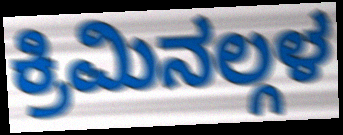
ಕ್ರಿಮಿನಲ್ಗಳ